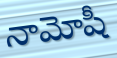
నామోషీ